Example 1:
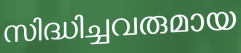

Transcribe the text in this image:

സിദ്ധിച്ചവരുമായ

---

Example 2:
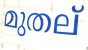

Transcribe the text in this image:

മുതല്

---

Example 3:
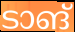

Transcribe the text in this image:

ടാങ്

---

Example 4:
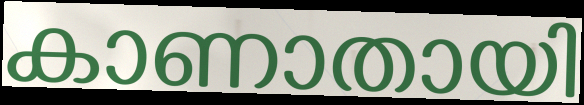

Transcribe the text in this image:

കാണാതായി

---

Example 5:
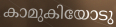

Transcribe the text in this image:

കാമുകിയോടു